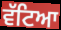
ਵੱਟਿਆ